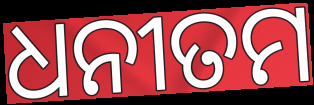
ଧନୀତମ